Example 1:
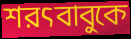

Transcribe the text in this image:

শরৎবাবুকে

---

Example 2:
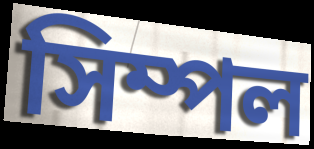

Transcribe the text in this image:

সিম্পল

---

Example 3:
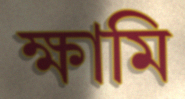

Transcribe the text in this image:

ক্ষামি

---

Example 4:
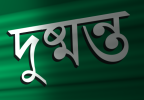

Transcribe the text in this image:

দুষ্মন্ত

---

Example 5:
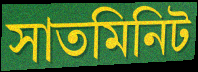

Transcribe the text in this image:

সাতমিনিট